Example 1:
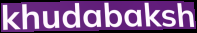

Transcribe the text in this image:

khudabaksh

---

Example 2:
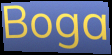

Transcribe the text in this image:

Boga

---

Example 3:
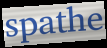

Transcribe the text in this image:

spathe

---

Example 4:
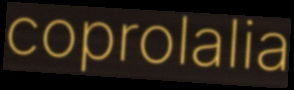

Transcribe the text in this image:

coprolalia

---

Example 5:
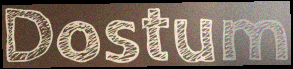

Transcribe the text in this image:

Dostum